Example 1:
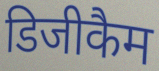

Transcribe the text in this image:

डिजीकैम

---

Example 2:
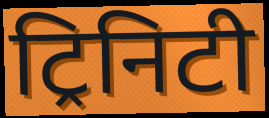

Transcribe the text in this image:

ट्रिनिटी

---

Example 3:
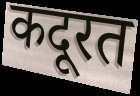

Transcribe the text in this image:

कदूरत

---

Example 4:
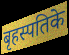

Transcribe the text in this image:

बृहस्पतिके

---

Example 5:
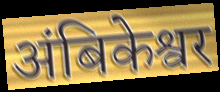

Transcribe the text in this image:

अंबिकेश्वर